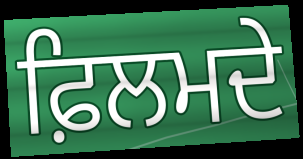
ਫ਼ਿਲਮਦੇ